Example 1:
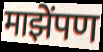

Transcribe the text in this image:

माझेंपण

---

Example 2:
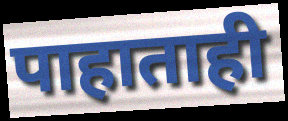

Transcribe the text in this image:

पाहाताही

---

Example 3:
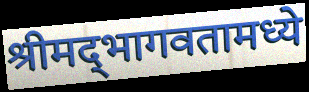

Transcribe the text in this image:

श्रीमद्‌भागवतामध्ये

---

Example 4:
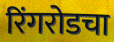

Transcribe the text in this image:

रिंगरोडचा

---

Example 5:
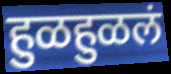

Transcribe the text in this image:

हुळहुळलं